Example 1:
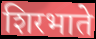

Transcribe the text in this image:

शिरभाते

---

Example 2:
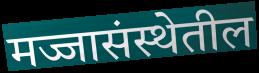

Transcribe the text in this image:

मज्जासंस्थेतील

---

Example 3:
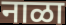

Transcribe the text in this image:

नाळा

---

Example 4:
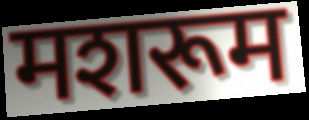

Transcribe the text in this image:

मशरूम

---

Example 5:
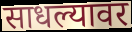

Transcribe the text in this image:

साधल्यावर